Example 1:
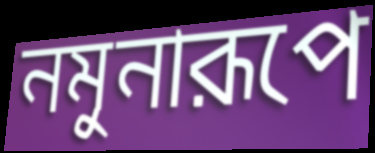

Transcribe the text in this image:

নমুনারূপে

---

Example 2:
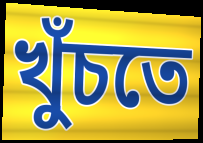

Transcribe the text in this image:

খুঁচতে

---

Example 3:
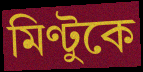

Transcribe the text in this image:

মিণ্টুকে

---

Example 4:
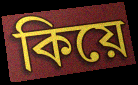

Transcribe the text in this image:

কিয়ে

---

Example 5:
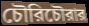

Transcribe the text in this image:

চৌরিচৌরার